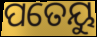
ପତେୟୁ